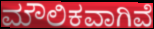
ಮೌಲಿಕವಾಗಿವೆ